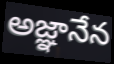
అజ్ఞానేన